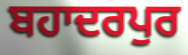
ਬਹਾਦਰਪੁਰ